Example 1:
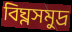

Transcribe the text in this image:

বিঘ্নসমুদ্র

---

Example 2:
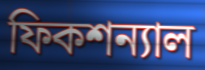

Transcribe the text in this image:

ফিকশন্যাল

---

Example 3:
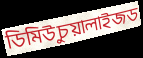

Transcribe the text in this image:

ডিমিউচুয়ালাইজড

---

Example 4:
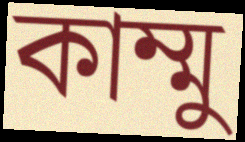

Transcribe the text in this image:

কাম্মু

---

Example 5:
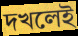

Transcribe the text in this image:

দখলেই